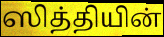
ஸித்தியின்